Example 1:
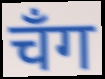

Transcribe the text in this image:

चँग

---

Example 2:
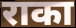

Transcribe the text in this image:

राका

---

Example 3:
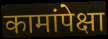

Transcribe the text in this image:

कामांपेक्षा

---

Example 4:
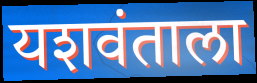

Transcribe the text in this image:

यशवंताला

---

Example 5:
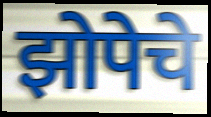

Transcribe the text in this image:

झोपेचे